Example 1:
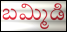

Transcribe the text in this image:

బమ్మిడి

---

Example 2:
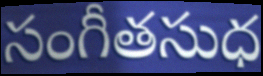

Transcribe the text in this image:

సంగీతసుధ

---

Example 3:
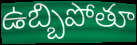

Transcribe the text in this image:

ఉబ్బిపోతూ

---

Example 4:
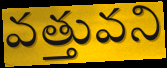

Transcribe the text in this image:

వత్తువని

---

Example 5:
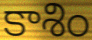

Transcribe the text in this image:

కాశిం